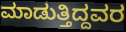
ಮಾಡುತ್ತಿದ್ದವರ